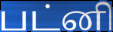
பட்னி